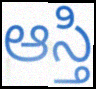
ఆస్తి